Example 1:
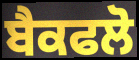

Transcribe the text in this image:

ਬੈਕਫਲੋ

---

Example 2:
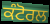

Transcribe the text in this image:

ਕੰਟੋਰਲ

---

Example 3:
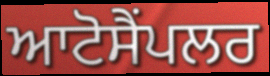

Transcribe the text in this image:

ਆਟੋਸੈਂਪਲਰ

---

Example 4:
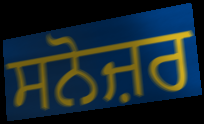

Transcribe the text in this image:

ਸਨੋਜ਼ਰ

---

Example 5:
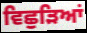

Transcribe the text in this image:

ਵਿਛੁੜਿਆਂ